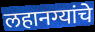
लहानग्यांचे